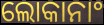
ଲୋକାନାଂ